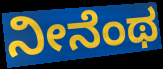
ನೀನೆಂಥ